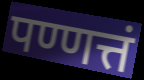
पण्णत्तं